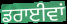
ਡਰਾਈਵਾਂ